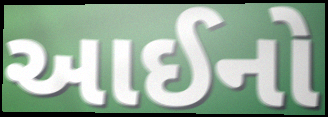
આઈનો